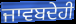
ਜਾਵਬਦੇਹੀ